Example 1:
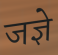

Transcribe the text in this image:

जज्ञे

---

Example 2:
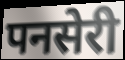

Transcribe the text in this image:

पनसेरी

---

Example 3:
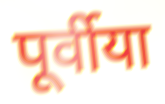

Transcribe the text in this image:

पूर्वीया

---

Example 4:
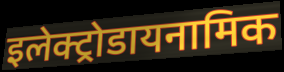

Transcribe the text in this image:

इलेक्ट्रोडायनामिक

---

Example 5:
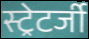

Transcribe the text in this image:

स्ट्रेटर्जी